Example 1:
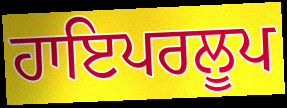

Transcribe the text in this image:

ਹਾਇਪਰਲੂਪ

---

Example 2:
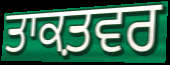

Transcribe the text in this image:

ਤਾਕ਼ਤਵਰ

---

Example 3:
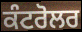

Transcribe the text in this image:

ਕੰਟਰੋਲਰ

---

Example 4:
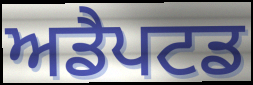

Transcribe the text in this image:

ਅਡੈਪਟਡ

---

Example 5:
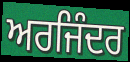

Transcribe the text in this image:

ਅਰਜਿੰਦਰ